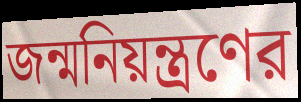
জন্মনিয়ন্ত্রণের